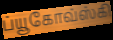
ப்யூகோவ்ஸ்கி